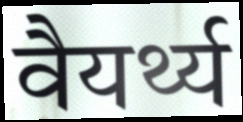
वैयर्थ्य